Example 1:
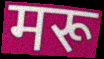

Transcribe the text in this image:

मरू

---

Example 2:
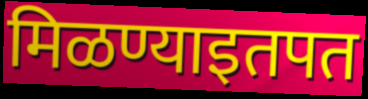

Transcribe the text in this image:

मिळण्याइतपत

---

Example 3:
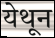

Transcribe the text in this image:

येथून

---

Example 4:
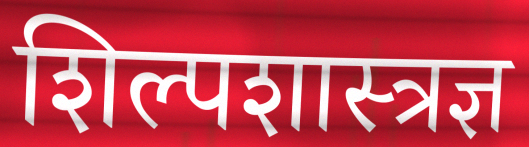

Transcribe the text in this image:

शिल्पशास्त्रज्ञ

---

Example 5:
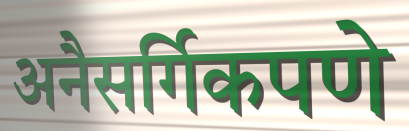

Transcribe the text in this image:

अनैसर्गिकपणे